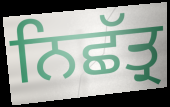
ਨਿਛੱਤ੍ਰ੍ਰ